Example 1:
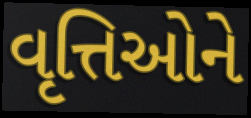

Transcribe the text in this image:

વૃત્તિઓને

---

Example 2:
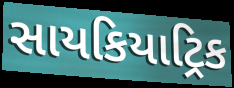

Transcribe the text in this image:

સાયકિયાટ્રિક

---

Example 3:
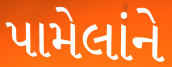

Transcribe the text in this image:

પામેલાંને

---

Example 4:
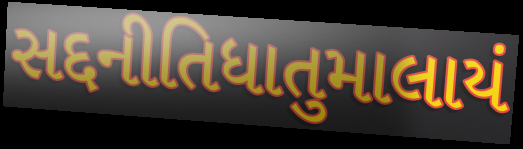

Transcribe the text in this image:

સદ્દનીતિધાતુમાલાયં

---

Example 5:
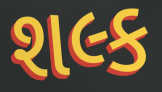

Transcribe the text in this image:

શલ્ક